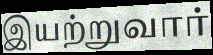
இயற்றுவார்